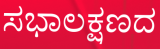
ಸಭಾಲಕ್ಷಣದ